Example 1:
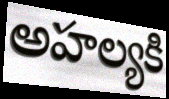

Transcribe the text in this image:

అహల్యకి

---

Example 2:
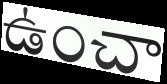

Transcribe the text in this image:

ఉంచా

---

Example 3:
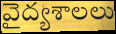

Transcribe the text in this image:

వైద్యశాలలు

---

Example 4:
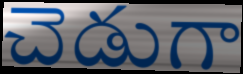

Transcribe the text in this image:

చెడుగా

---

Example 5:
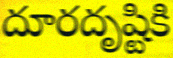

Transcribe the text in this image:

దూరదృష్టికి